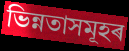
ভিন্নতাসমূহৰ